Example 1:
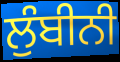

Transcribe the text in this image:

ਲੁੰਬੀਨੀ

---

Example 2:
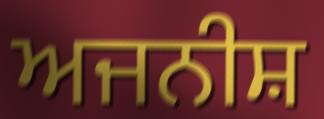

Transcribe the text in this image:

ਅਜਨੀਸ਼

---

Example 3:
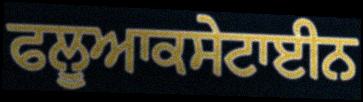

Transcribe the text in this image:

ਫਲੂਆਕਸੇਟਾਈਨ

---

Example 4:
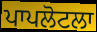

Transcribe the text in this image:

ਪਾਪਲੋਟਲਾ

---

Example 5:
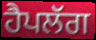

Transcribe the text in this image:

ਹੈਪਲੱਗ